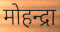
मोहन्द्रा